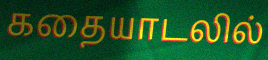
கதையாடலில்